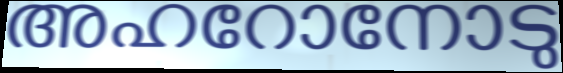
അഹറോനോടു